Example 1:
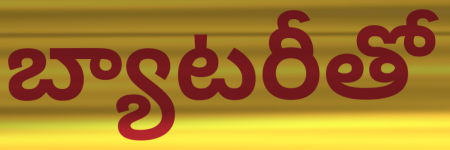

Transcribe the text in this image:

బ్యాటరీతో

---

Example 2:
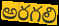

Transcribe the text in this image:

అరగలి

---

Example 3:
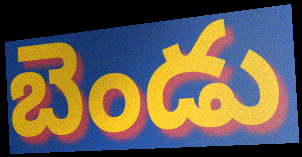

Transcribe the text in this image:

బెండు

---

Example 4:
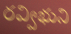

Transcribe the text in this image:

రవ్విభుని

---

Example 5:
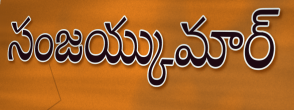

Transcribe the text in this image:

సంజయ్కుమార్